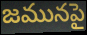
జమునపై